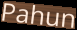
Pahun